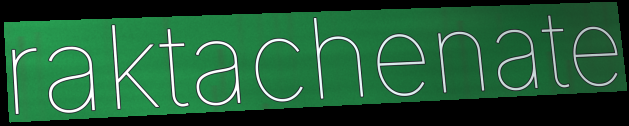
raktachenate